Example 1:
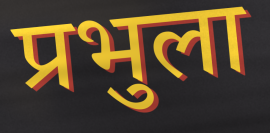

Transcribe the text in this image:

प्रभुला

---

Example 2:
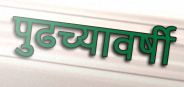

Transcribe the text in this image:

पुढच्यावर्षी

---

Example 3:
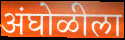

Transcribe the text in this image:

अंघोळीला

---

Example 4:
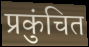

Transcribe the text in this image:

प्रकुंचित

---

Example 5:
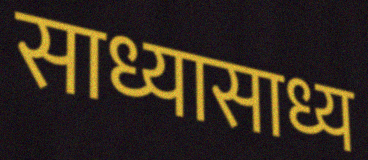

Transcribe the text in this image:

साध्यासाध्य